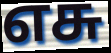
எசு